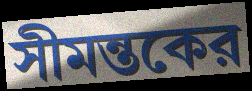
সীমন্তকের